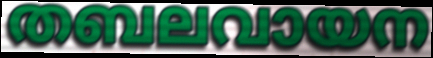
തബലവായന